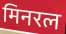
मिनरल